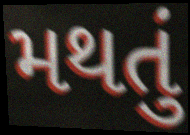
મથતું